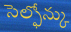
సెల్ఫోన్కు